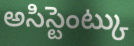
అసిస్టెంట్కు